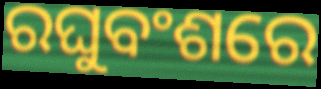
ରଘୁବଂଶରେ